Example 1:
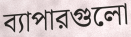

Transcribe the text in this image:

ব্যাপারগুলো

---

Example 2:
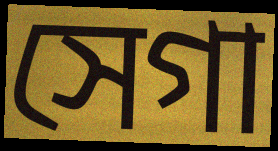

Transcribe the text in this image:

সেগা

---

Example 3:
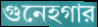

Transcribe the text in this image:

গুনেহগার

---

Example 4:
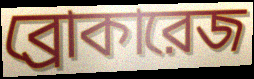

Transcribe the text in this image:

ব্রোকারেজ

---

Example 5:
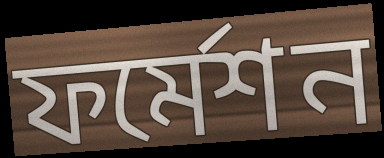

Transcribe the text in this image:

ফর্মেশন